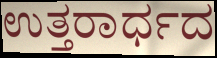
ಉತ್ತರಾರ್ಧದ